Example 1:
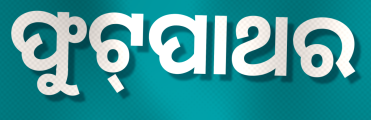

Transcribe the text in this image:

ଫୁଟ୍‌ପାଥର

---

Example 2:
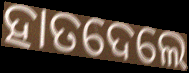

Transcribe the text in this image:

ହାତଦେଲେ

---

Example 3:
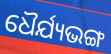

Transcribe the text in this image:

ଧୈର୍ଯ୍ୟଭଙ୍ଗ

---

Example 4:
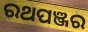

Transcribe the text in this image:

ରଥପଞ୍ଜର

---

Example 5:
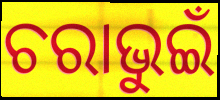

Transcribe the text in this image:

ଚରାଭୁଇଁ